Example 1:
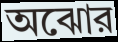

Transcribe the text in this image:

অঝোর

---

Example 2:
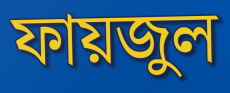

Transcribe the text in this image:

ফায়জুল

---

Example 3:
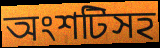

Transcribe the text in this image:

অংশটিসহ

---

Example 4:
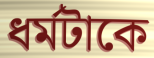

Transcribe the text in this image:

ধর্মটাকে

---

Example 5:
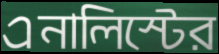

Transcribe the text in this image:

এনালিস্টের